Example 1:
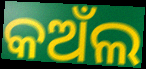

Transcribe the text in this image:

କଅଁଲ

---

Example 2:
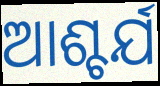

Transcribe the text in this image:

ଆଶ୍ଚର୍ଯ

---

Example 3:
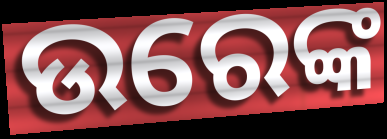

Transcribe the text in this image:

ଉରେଙ୍କ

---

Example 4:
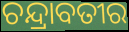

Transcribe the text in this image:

ଚନ୍ଦ୍ରାବତୀର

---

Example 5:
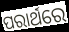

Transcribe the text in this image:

ପରାର୍ଥରେ